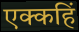
एक्कहिं